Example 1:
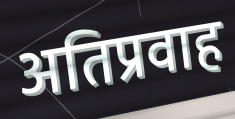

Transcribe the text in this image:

अतिप्रवाह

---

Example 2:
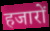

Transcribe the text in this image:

हजारों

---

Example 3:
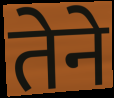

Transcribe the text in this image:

तेने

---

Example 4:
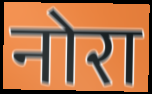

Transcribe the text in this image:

नोरा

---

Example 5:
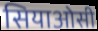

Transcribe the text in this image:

सियाओसी